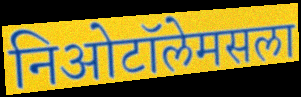
निओटॉलेमसला